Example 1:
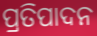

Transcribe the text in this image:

ପ୍ରତିପାଦନ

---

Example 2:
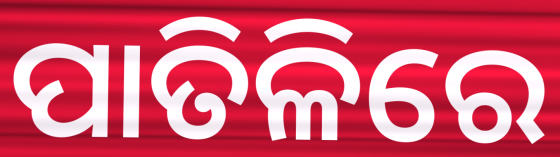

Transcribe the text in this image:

ପାତିଳିରେ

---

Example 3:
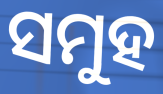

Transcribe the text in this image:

ସମୁହ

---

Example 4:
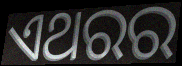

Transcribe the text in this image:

ଏଥରର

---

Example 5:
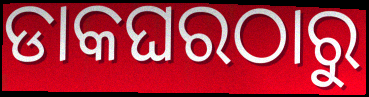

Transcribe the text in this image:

ଡାକଘରଠାରୁ